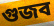
গুজব